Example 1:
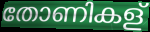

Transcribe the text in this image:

തോണികള്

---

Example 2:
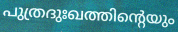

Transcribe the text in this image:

പുത്രദുഃഖത്തിന്റെയും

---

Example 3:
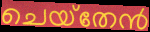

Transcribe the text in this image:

ചെയ്‌തേൻ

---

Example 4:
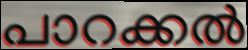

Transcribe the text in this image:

പാറക്കൽ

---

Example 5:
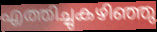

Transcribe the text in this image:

എത്തിച്ചുകഴിഞ്ഞു